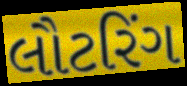
લૌટરિંગ